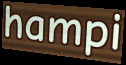
hampi